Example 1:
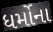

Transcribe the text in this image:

ધર્મોના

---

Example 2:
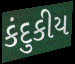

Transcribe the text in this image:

કંદુકીય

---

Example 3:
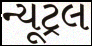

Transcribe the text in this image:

ન્યૂટ્રલ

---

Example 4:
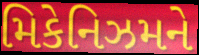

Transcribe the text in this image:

મિકેનિઝમને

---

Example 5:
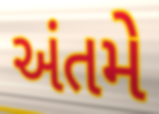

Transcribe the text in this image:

અંતમે